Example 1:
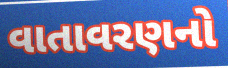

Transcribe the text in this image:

વાતાવરણનો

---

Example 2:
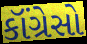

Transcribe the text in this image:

કૉંગ્રેસો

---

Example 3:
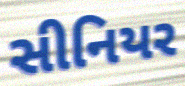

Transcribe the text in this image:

સીનિયર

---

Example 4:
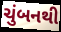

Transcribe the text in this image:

ચુંબનથી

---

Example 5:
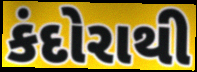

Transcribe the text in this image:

કંદોરાથી